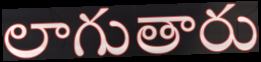
లాగుతారు